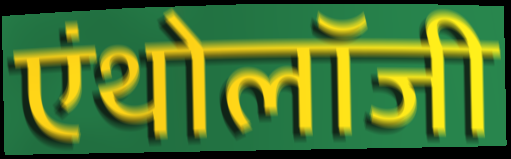
एंथोलॉजी